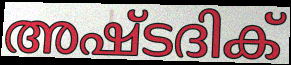
അഷ്ടദിക്